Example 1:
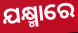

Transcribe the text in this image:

ଯକ୍ଷ୍ମାରେ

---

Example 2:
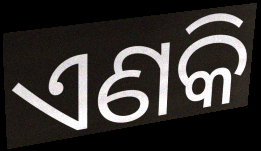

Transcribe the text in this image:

ଏଣକି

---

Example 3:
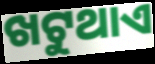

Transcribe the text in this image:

ଖଟୁଥାଏ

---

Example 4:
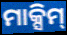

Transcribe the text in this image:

ମାକ୍ସିମ୍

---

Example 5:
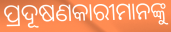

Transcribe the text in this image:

ପ୍ରଦୂଷଣକାରୀମାନଙ୍କୁ